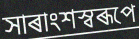
সাৰাংশস্বৰূপে